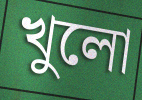
খুলো